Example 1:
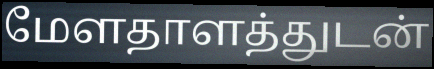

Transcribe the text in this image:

மேளதாளத்துடன்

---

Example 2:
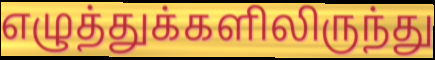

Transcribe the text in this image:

எழுத்துக்களிலிருந்து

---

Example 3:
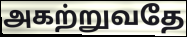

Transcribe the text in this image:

அகற்றுவதே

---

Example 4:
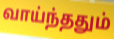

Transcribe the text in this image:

வாய்ந்ததும்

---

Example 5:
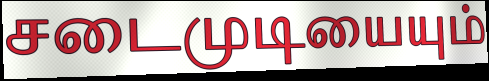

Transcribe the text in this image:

சடைமுடியையும்